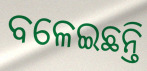
ବଳେଇଛନ୍ତି